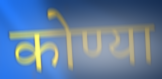
कोण्या